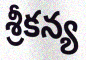
శ్రీకన్య